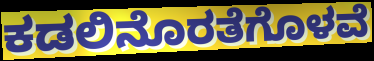
ಕಡಲಿನೊರತೆಗೊಳವೆ